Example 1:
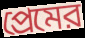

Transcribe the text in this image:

প্রেমের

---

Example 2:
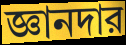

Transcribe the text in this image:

জ্ঞানদার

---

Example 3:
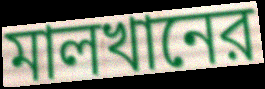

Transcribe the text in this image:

মালখানের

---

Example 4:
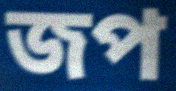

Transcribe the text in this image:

জপ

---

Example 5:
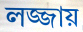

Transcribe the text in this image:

লজ্জায়